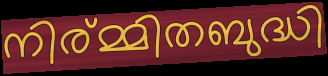
നിര്മ്മിതബുദ്ധി